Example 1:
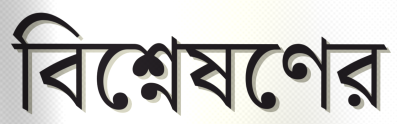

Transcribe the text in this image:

বিশ্নেষণের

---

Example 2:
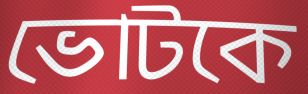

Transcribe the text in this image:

ভোটকে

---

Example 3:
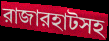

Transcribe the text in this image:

রাজারহাটসহ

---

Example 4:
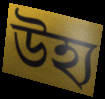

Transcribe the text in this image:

উহ্য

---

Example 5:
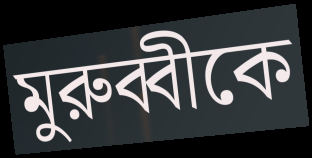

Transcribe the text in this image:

মুরুব্বীকে